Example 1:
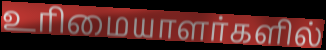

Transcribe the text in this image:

உரிமையாளர்களில்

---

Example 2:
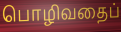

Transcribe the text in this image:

பொழிவதைப்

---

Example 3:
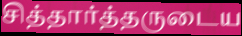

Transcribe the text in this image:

சித்தார்த்தருடைய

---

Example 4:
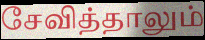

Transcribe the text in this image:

சேவித்தாலும்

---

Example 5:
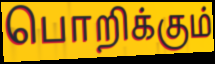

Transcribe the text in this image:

பொறிக்கும்